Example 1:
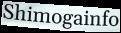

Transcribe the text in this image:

Shimogainfo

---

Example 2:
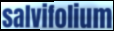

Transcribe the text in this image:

salvifolium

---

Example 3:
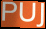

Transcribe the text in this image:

PUJ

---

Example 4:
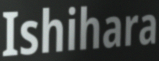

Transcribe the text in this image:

Ishihara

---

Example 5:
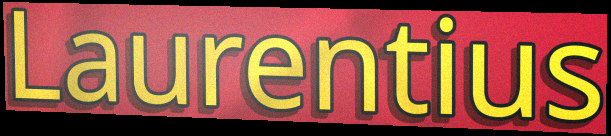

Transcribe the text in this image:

Laurentius